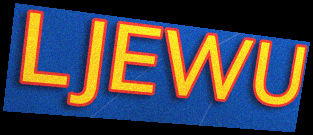
LJEWU